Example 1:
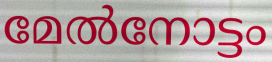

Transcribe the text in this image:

മേൽനോട്ടം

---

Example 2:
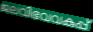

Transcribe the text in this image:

ജലവിഭവവകുപ്പ്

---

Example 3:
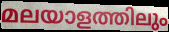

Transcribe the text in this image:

മലയാളത്തിലും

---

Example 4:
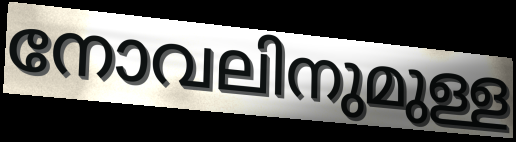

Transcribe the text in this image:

നോവലിനുമുള്ള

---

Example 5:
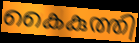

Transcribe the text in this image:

കൈകുത്തി